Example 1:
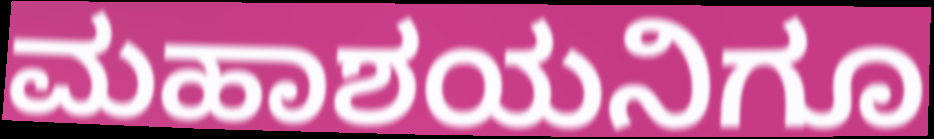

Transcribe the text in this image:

ಮಹಾಶಯನಿಗೂ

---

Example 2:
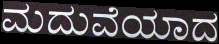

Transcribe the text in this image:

ಮದುವೆಯಾದ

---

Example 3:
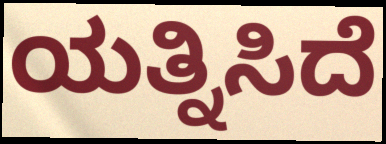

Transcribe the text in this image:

ಯತ್ನಿಸಿದೆ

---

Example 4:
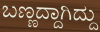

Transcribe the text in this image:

ಬಣ್ಣದ್ದಾಗಿದ್ದು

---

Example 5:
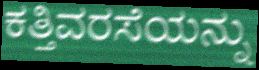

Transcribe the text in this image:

ಕತ್ತಿವರಸೆಯನ್ನು